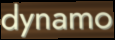
dynamo